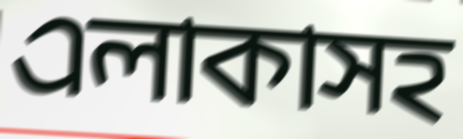
এলাকাসহ